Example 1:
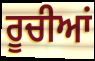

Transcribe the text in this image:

ਰੂਚੀਆਂ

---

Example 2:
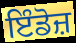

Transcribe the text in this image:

ਇੰਡੋਜ਼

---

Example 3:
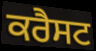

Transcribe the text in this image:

ਕਰੈਸਟ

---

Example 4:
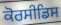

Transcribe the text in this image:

ਕੋਰਸੀਡਿਸ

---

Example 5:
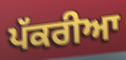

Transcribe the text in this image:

ਪੱਕਰੀਆ